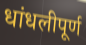
धांधलीपूर्ण